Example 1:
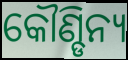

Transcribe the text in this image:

କୌଣ୍ଡିନ୍ୟ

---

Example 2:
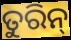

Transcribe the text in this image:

ତୁରିନ୍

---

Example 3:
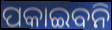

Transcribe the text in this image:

ପକାଇବନି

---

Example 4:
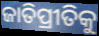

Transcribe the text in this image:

ଜାତିପ୍ରୀତିକୁ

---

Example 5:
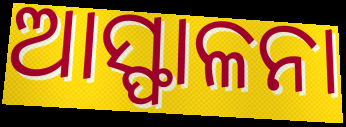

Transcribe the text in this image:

ଆସ୍ଫାଳନା